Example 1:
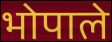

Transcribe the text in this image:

भोपाले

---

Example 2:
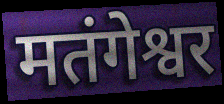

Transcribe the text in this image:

मतंगेश्वर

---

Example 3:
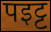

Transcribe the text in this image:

पइट्ट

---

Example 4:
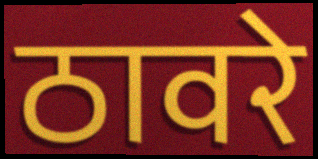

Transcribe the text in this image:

ठावरे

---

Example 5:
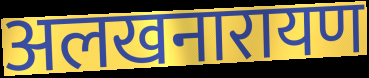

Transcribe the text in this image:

अलखनारायण